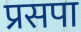
प्रसपा